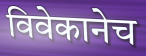
विवेकानेच